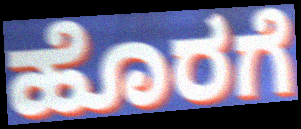
ಹೊರಗೆ